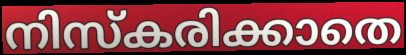
നിസ്കരിക്കാതെ